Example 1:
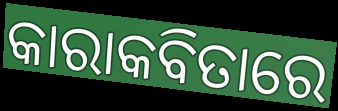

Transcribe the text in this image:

କାରାକବିତାରେ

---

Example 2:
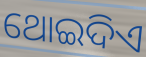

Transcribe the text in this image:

ଥୋଇଦିଏ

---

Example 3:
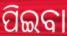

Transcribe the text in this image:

ପିଇବା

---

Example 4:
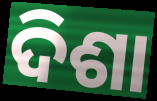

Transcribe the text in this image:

ଦିଶା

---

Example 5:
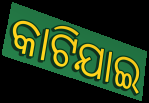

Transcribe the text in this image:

କାଟିଯାଇ